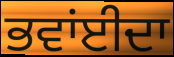
ਭਵਾਂਈਦਾ